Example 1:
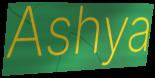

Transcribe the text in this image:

Ashya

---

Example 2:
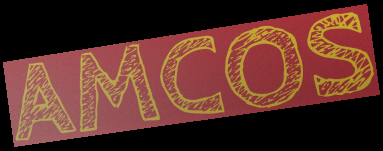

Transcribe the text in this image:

AMCOS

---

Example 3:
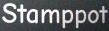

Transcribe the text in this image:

Stamppot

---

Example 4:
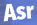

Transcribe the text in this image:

Asr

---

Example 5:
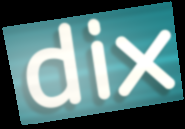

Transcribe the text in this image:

dix